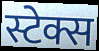
स्टेक्स